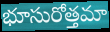
భూసురోత్తమా